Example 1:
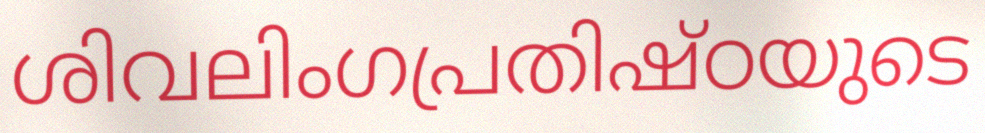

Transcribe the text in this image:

ശിവലിംഗപ്രതിഷ്ഠയുടെ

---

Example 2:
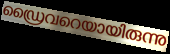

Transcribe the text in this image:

ഡ്രൈവറെയായിരുന്നു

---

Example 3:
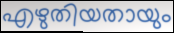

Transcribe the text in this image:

എഴുതിയതായും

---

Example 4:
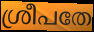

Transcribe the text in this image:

ശ്രീപതേ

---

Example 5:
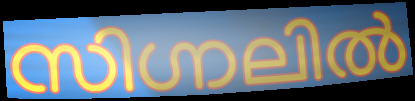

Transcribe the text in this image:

സിഗ്നലിൽ